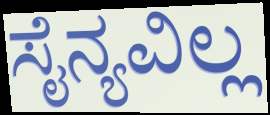
ಸೈನ್ಯವಿಲ್ಲ